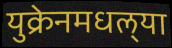
युक्रेनमधल्या